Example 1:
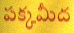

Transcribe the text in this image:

పక్కమీద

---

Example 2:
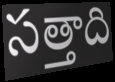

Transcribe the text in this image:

సత్తాది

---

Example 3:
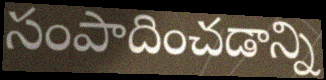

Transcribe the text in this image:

సంపాదించడాన్ని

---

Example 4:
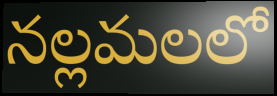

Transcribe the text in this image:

నల్లమలలో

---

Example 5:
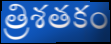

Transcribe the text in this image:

త్రిశతకం